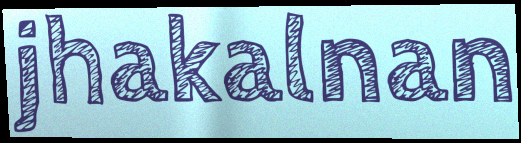
jhakalnan